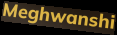
Meghwanshi